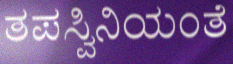
ತಪಸ್ವಿನಿಯಂತೆ